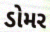
ડોમર